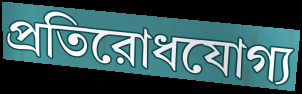
প্রতিরোধযোগ্য